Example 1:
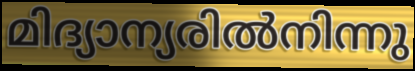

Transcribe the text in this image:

മിദ്യാന്യരിൽനിന്നു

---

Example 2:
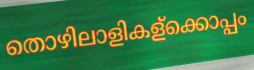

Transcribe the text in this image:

തൊഴിലാളികള്ക്കൊപ്പം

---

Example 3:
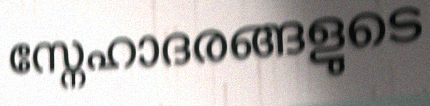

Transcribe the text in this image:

സ്നേഹാദരങ്ങളുടെ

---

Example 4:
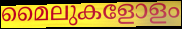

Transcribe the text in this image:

മൈലുകളോളം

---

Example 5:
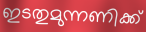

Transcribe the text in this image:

ഇടതുമുന്നണിക്ക്